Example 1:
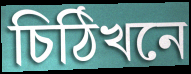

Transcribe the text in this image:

চিঠিখনে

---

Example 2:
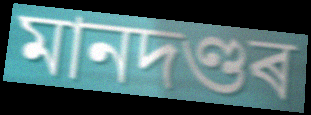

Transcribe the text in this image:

মানদণ্ডৰ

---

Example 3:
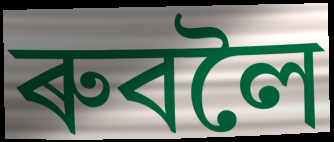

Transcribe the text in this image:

ৰুবলৈ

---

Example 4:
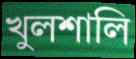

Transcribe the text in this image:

খুলশালি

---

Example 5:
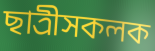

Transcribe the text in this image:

ছাত্ৰীসকলক